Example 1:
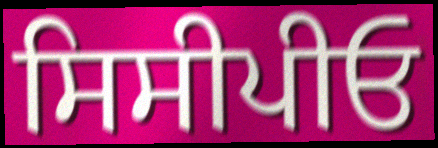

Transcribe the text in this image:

ਸਿਸੀਪੀਓ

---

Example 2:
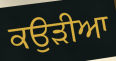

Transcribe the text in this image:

ਕਉੜੀਆ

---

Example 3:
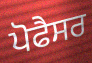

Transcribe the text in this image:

ਪੋਫੈਸਰ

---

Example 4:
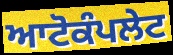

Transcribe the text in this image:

ਆਟੋਕੰਪਲੇਟ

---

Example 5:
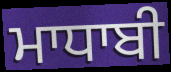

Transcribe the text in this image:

ਮਾਧਾਬੀ